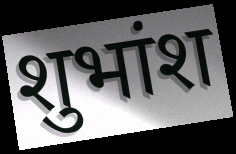
शुभांश